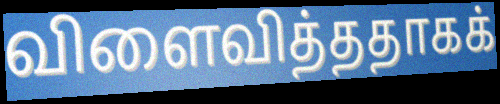
விளைவித்ததாகக்